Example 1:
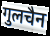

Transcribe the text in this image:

गुलचैन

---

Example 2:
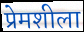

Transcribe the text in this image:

प्रेमशीला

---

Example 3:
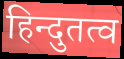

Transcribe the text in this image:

हिन्दुतत्व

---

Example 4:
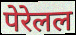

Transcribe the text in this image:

पेरेलल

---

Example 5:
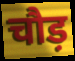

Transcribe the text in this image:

चौड़